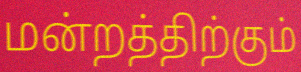
மன்றத்திற்கும்